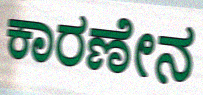
ಕಾರಣೇನ